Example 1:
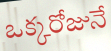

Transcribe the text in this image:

ఒక్కరోజునే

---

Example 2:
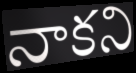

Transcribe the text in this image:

నాకని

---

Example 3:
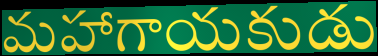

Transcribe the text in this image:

మహాగాయకుడు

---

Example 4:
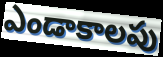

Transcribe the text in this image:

ఎండాకాలపు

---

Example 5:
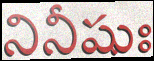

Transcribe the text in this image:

నినీషుః